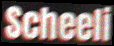
Scheeli